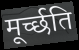
मूर्च्छति